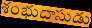
శంభుదాసుడు